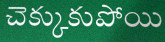
చెక్కుకుపోయి